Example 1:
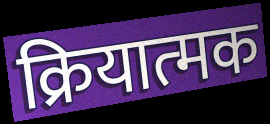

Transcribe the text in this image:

क्रियात्‍मक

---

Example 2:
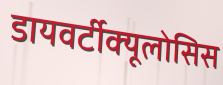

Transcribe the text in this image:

डायवर्टीक्यूलोसिस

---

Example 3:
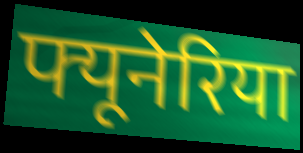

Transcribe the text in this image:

फ्यूनेरिया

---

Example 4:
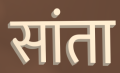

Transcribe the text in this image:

सांता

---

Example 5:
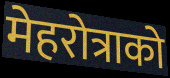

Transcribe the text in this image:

मेहरोत्राको